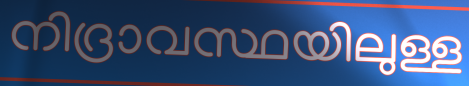
നിദ്രാവസ്ഥയിലുള്ള